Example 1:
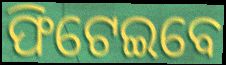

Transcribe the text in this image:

ଫିଟେଇବେ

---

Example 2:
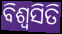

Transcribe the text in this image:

ବିଶ୍ଵସିତି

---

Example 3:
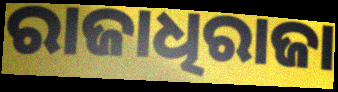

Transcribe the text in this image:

ରାଜାଧିରାଜା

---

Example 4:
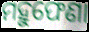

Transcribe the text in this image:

ମହୁଫେଣା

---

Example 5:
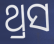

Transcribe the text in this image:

ଥ୍ରସ